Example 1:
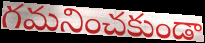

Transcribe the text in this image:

గమనించకుండా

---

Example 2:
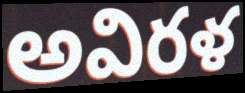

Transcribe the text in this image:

అవిరళ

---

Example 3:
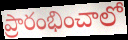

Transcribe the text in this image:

ప్రారంభించాలో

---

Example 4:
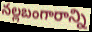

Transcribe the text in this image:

నల్లబంగారాన్ని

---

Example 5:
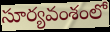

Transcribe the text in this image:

సూర్యవంశంలో